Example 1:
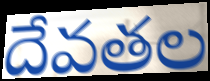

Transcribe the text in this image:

దేవతల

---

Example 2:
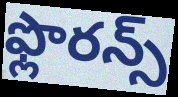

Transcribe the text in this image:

ఫ్లొరన్స్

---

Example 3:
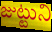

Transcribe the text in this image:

జుట్టుని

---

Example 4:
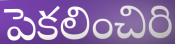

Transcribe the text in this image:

పెకలించిరి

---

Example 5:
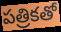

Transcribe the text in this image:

పత్రికతో